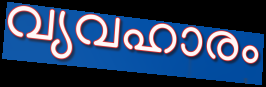
വ്യവഹാരം